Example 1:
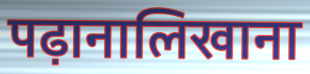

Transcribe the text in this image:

पढ़ानालिखाना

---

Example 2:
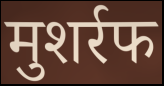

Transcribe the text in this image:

मुशर्रफ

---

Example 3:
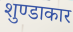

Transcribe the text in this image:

शुण्डाकार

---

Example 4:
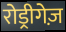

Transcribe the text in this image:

रोड्रीगेज़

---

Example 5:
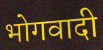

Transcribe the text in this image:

भोगवादी